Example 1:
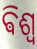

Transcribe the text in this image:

ଵିଶ୍ୱ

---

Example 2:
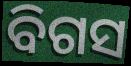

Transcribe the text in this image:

ବିଗସ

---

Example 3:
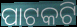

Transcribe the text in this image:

ପାଟକଟି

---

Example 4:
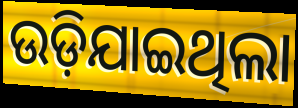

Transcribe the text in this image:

ଉଡ଼ିଯାଇଥିଲା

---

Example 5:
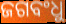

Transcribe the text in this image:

ଜଗବଂଧୁ